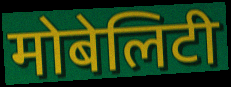
मोबेलिटी